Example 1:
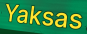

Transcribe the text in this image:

Yaksas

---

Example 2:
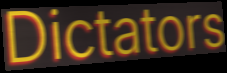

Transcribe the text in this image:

Dictators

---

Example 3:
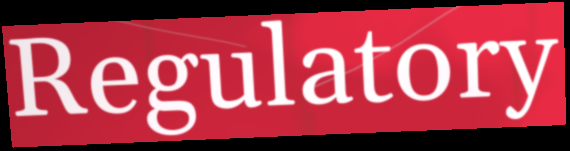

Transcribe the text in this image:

Regulatory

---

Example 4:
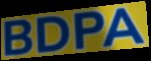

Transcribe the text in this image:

BDPA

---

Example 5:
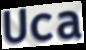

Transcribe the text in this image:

Uca